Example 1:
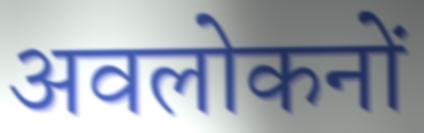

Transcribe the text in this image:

अवलोकनों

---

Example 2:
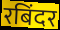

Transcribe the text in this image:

रबिंदर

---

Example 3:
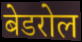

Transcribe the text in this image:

बेडरोल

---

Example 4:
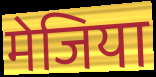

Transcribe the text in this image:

मेजिया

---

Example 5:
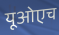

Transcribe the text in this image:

यूओएच